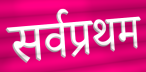
सर्वप्रथम